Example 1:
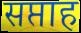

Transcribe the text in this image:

सप्ताह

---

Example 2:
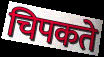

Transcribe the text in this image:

चिपकते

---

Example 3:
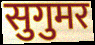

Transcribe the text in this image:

सुगुमर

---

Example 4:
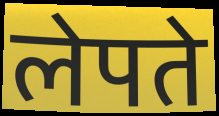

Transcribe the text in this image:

लेपते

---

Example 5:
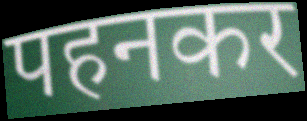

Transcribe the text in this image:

पहनकर